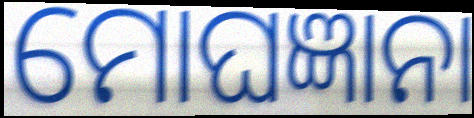
ମୋଘଜ୍ଞାନା